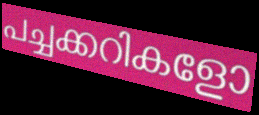
പച്ചക്കറികളോ